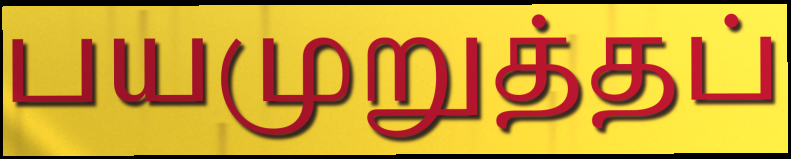
பயமுறுத்தப்